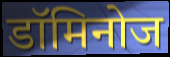
डॉमिनोज